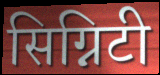
सिग्निटी